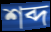
শব্দ